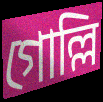
গোল্লি